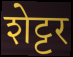
शेट्टर